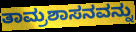
ತಾಮ್ರಶಾಸನವನ್ನು